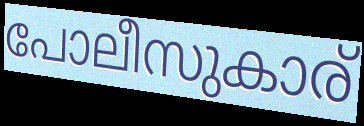
പോലീസുകാര്